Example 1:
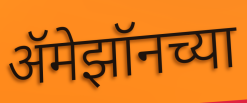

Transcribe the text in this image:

ॲमेझॉनच्या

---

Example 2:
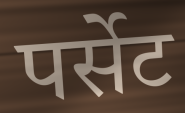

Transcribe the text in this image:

पर्सेट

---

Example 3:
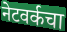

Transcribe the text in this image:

नेटवर्कचा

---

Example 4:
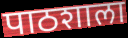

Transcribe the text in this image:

पाठशाला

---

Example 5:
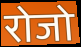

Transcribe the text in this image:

रोजो